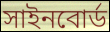
সাইনবোর্ড